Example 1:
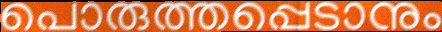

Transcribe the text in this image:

പൊരുത്തപ്പെടാനും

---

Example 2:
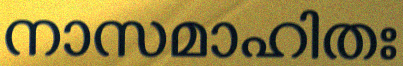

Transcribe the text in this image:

നാസമാഹിതഃ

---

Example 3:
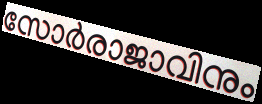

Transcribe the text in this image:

സോർരാജാവിനും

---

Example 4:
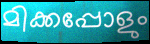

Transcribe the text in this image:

മിക്കപ്പോളും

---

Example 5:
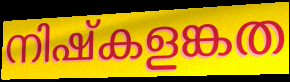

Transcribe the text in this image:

നിഷ്‌കളങ്കത